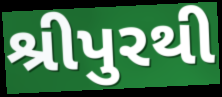
શ્રીપુરથી